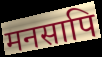
मनसापि